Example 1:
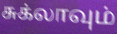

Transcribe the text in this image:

சுக்லாவும்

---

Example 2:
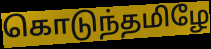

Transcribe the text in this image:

கொடுந்தமிழே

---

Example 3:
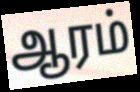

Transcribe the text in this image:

ஆரம்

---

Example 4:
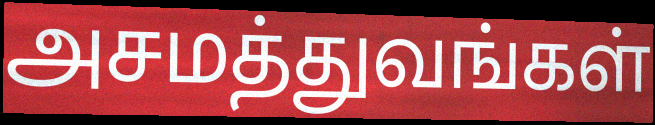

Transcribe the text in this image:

அசமத்துவங்கள்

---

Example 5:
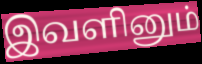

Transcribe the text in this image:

இவளினும்